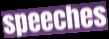
speeches